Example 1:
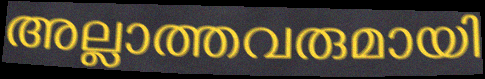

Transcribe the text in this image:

അല്ലാത്തവരുമായി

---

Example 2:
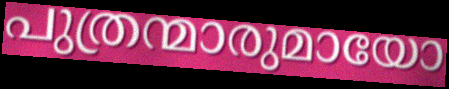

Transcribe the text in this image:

പുത്രന്മാരുമായോ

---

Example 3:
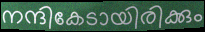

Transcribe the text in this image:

നന്ദികേടായിരിക്കും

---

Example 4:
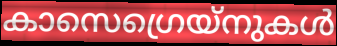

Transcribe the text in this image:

കാസെഗ്രെയ്നുകൾ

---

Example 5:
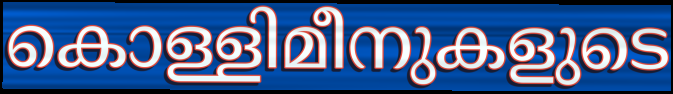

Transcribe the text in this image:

കൊള്ളിമീനുകളുടെ